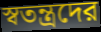
স্বতন্ত্রদের